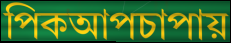
পিকআপচাপায়